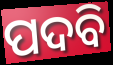
ପଦବି